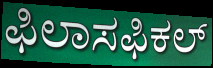
ಫಿಲಾಸಫಿಕಲ್